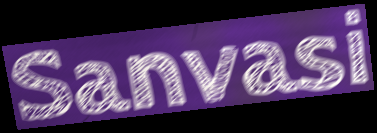
Sanvasi